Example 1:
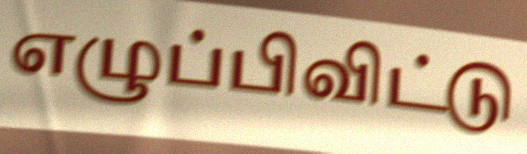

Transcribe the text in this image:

எழுப்பிவிட்டு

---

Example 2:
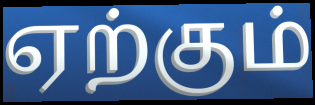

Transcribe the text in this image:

ஏற்கும்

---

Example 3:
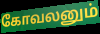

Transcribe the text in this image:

கோவலனும்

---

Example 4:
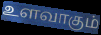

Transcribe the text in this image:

உளவாகும்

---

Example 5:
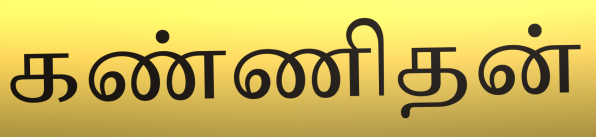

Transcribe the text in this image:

கண்ணிதன்